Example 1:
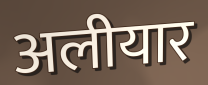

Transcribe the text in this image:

अलीयार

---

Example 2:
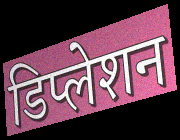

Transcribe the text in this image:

डिप्लेशन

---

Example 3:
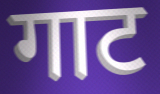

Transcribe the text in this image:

गाट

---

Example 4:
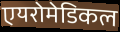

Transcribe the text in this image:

एयरोमेडिकल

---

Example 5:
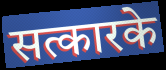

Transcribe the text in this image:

सत्कारके